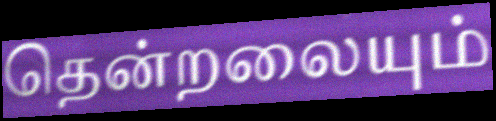
தென்றலையும்